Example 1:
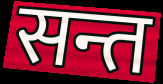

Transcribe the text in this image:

सन्‍त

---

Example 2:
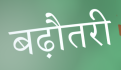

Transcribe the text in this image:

बढ़ौतरी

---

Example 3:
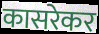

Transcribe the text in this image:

कासरेकर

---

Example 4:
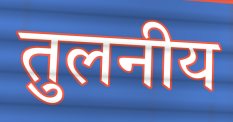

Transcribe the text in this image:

तुलनीय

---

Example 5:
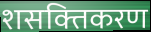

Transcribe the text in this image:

शसक्तिकरण